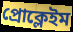
প্রোক্লেইম